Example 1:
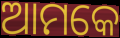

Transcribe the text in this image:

ଆମକେ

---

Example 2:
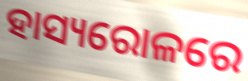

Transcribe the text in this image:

ହାସ୍ୟରୋଳରେ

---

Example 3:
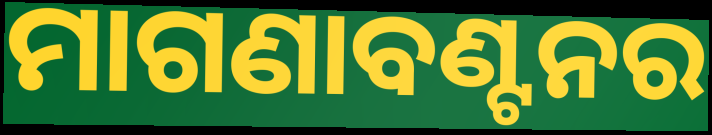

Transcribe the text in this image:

ମାଗଣାବଣ୍ଟନର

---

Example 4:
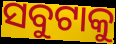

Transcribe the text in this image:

ସବୁଟାକୁ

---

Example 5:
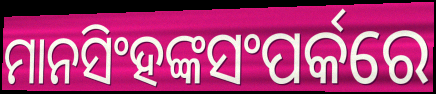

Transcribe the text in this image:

ମାନସିଂହଙ୍କସଂପର୍କରେ